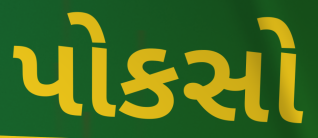
પોકસો